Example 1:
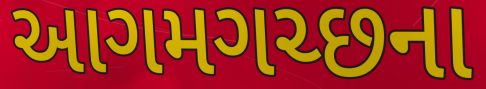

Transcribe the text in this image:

આગમગચ્છના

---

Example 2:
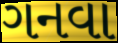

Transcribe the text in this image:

ગનવા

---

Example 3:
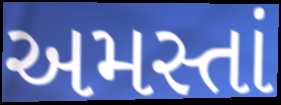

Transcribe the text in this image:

અમસ્તાં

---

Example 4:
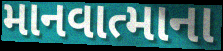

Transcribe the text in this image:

માનવાત્માના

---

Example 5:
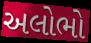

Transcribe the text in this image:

અલોભો